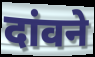
दांवने